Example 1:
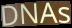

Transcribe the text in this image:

DNAs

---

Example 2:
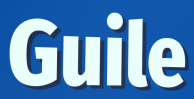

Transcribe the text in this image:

Guile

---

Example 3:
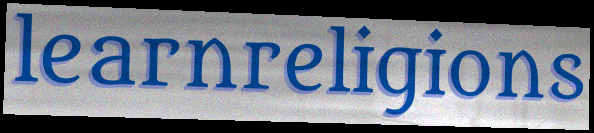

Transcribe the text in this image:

learnreligions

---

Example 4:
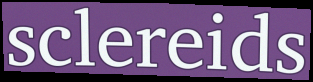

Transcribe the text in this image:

sclereids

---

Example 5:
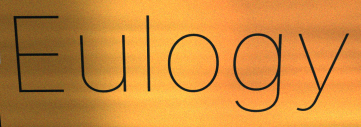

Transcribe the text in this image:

Eulogy